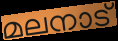
മലനാട്